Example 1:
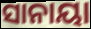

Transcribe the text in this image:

ସାନାୟା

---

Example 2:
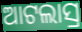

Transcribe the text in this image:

ଆଟଲାସ୍ର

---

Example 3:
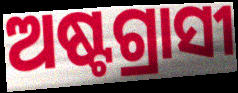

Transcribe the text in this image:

ଅଷ୍ଟଗ୍ରାସୀ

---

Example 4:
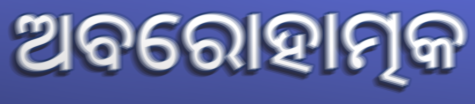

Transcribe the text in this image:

ଅବରୋହାତ୍ମକ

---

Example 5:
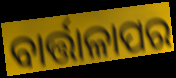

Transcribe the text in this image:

ବାର୍ତ୍ତାଳାପର